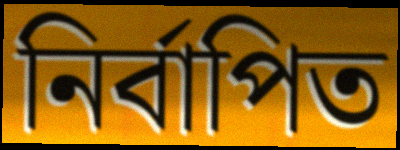
নিৰ্বাপিত